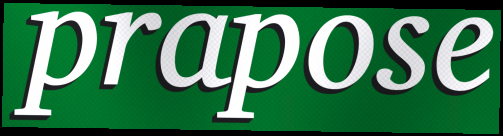
prapose